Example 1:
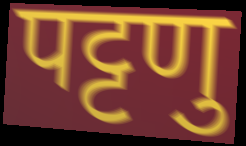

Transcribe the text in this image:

पट्टणु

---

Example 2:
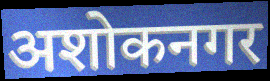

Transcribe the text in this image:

अशोकनगर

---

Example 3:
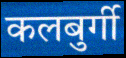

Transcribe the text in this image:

कलबुर्गी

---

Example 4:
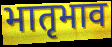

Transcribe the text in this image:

भातृभाव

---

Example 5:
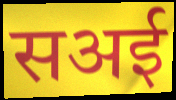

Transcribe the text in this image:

सअई